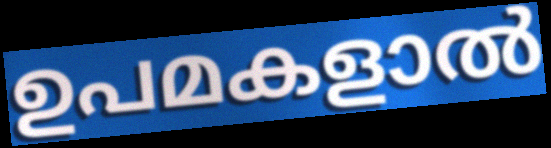
ഉപമകളാൽ